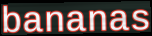
bananas